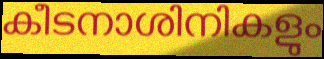
കീടനാശിനികളും